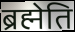
ब्रह्मेति